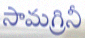
సామగ్రినీ